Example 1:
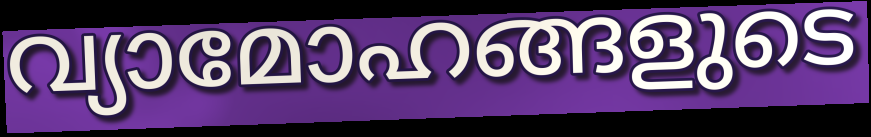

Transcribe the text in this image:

വ്യാമോഹങ്ങളുടെ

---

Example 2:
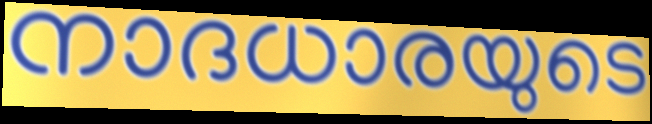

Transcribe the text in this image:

നാദധാരയുടെ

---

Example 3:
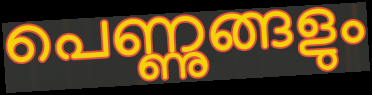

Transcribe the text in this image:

പെണ്ണുങ്ങളും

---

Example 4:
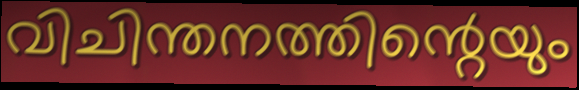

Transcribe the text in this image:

വിചിന്തനത്തിന്റെയും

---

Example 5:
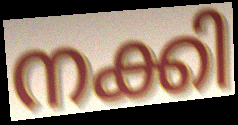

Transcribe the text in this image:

നക്കി